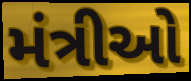
મંત્રીઓ